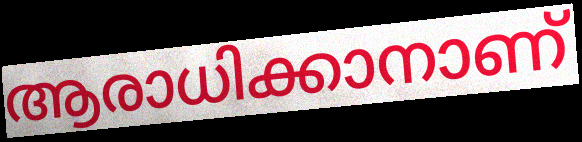
ആരാധിക്കാനാണ്